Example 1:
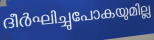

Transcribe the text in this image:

ദീർഘിച്ചുപോകയുമില്ല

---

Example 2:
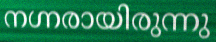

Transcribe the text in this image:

നഗ്നരായിരുന്നു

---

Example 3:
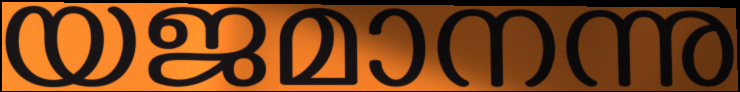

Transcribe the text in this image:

യജമാനന്നു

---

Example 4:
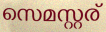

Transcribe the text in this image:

സെമസ്റ്റര്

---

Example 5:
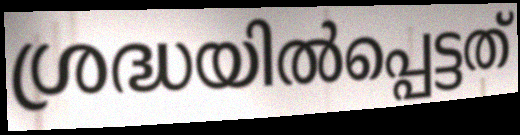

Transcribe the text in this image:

ശ്രദ്ധയിൽപ്പെട്ടത്